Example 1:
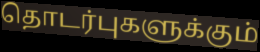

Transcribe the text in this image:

தொடர்புகளுக்கும்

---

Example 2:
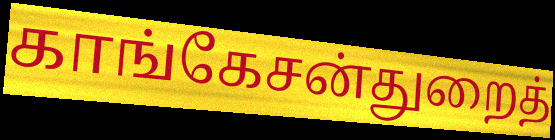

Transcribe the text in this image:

காங்கேசன்துறைத்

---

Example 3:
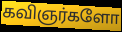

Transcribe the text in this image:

கவிஞர்களோ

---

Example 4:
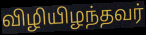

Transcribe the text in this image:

விழியிழந்தவர்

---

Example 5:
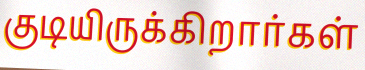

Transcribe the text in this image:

குடியிருக்கிறார்கள்